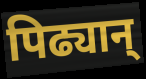
पिढ्यान्